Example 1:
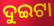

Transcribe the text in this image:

ଦୁଇଟା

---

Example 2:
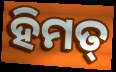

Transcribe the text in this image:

ହିମତ୍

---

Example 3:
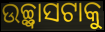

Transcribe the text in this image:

ଉଚ୍ଛ୍ୱାସଟାକୁ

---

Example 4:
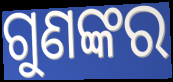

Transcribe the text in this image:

ଗୁଣଙ୍କର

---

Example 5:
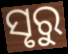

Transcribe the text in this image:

ସୃରୁ